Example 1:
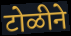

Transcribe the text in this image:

टोळीने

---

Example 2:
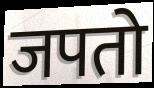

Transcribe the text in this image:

जपतो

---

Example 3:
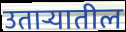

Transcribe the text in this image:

उताऱ्यातील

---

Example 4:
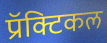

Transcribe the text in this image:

प्रॅक्टिकल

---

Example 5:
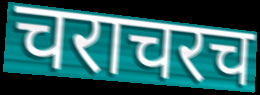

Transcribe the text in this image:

चराचरच